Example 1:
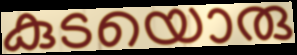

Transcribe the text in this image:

കുടയൊരു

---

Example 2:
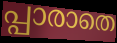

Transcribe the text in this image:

പ്പാരാതെ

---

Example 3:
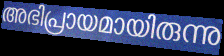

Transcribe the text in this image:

അഭിപ്രായമായിരുന്നു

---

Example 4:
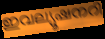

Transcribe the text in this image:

ഇവല്യൂഷനറി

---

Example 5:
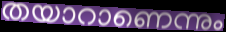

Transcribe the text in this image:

തയാറാണെന്നും